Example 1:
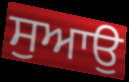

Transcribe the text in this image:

ਸੁਆਉ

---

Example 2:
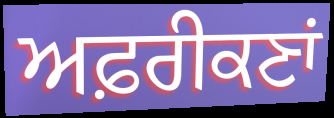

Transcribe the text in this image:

ਅਫ਼ਰੀਕਣਾਂ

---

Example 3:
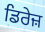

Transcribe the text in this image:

ਡਿਰੇਜ਼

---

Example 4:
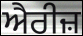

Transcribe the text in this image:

ਐਰੀਜ਼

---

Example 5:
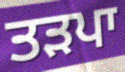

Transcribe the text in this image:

ਤੜਪਾ